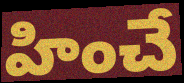
హించే